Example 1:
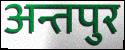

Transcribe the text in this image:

अन्तपुर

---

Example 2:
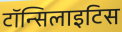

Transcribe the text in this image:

टॉन्सिलाइटिस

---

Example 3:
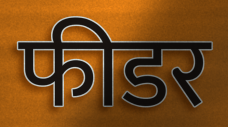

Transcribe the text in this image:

फीडर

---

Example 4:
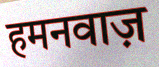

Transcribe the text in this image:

हमनवाज़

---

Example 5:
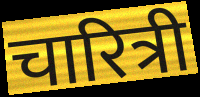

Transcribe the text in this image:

चारित्री